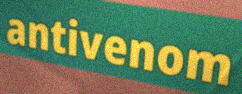
antivenom